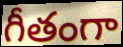
గీతంగా